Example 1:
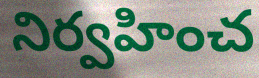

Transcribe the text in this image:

నిర్వహించ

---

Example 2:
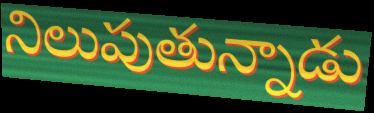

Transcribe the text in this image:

నిలుపుతున్నాడు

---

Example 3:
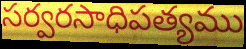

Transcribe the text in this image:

సర్వరసాధిపత్యము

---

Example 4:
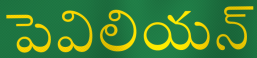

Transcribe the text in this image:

పెవిలియన్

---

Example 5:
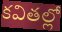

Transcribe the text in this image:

కవితల్లో